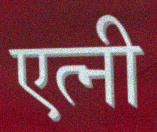
एत्नी